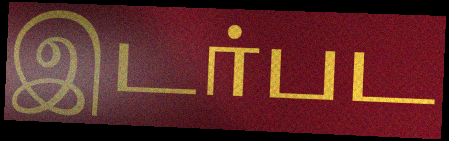
இடர்பட